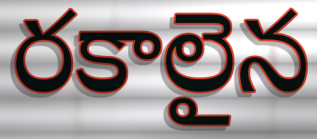
రకాలైన